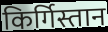
किर्गिस्‍तान